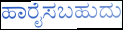
ಹಾರೈಸಬಹುದು